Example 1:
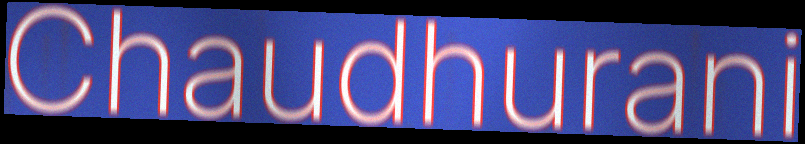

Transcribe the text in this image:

Chaudhurani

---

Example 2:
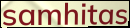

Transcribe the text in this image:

samhitas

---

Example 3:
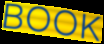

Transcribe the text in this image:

BOOK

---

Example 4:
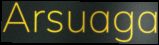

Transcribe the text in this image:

Arsuaga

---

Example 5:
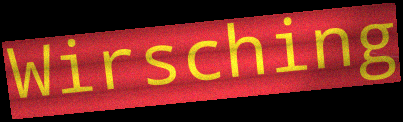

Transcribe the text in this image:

Wirsching